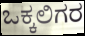
ಒಕ್ಕಲಿಗರ